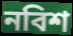
নবিশ